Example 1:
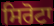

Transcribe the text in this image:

ਸਿਰੋਟਾ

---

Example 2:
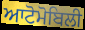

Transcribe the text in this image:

ਆਟੋਮੋਬਿਲੀ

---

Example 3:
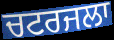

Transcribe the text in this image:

ਚਟਰਜਲਾ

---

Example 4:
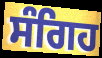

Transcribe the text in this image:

ਸੰਗਿਹ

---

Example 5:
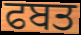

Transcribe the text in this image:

ਫਬਤ